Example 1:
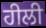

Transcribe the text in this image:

ਹੀਲੀ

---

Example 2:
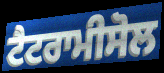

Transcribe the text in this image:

ਟੈਟਰਾਮੀਸੋਲ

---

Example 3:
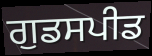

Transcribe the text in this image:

ਗੁਡਸਪੀਡ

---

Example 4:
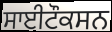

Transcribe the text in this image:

ਸਾਈਟੌਕਸਨ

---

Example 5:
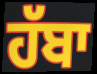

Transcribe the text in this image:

ਹੱਬਾ